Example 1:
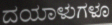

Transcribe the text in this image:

ದಯಾಳುಗಳೂ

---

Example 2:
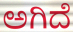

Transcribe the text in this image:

ಅಗಿದೆ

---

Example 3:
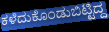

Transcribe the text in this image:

ಕಳೆದುಕೊಂಡುಬಿಟ್ಟಿದ್ದ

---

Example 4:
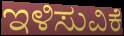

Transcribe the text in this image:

ಇಳಿಸುವಿಕೆ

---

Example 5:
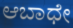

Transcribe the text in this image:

ಆಬಾಧೇ